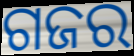
ଗଜର